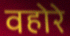
वहोरे